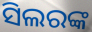
ସିଲରଙ୍କ